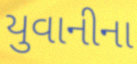
યુવાનીના